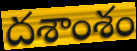
దశాంశం